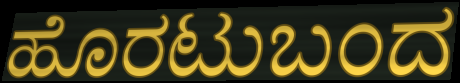
ಹೊರಟುಬಂದ